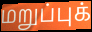
மறுப்புக்